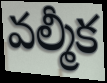
వల్మీక